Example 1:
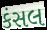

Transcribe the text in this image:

કંસલ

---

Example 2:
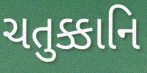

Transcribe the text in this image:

ચતુક્કાનિ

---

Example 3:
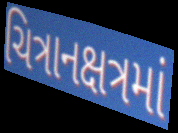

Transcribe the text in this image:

ચિત્રાનક્ષત્રમાં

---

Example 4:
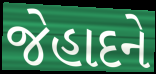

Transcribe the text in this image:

જેહાદને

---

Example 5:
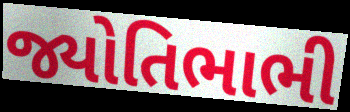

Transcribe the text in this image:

જ્યોતિભાભી